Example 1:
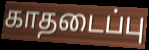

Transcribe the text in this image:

காதடைப்பு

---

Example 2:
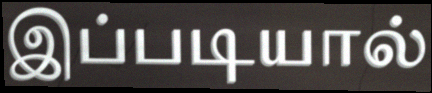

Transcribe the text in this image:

இப்படியால்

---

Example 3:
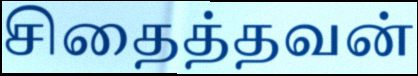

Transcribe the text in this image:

சிதைத்தவன்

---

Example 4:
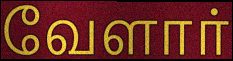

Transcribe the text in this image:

வேளார்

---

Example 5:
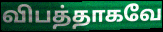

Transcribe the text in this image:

விபத்தாகவே